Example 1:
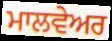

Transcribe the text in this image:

ਮਾਲਵੇਅਰ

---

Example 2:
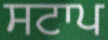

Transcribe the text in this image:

ਸਟਾਪ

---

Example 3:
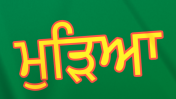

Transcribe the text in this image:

ਮੁੜਿਆ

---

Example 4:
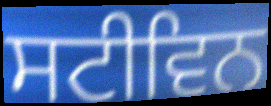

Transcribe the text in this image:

ਸਟੀਵਿਨ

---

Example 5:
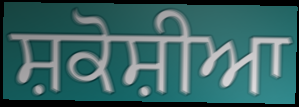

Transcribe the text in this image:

ਸ਼ਕੋਸ਼ੀਆ